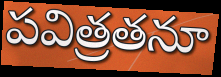
పవిత్రతనూ